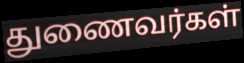
துணைவர்கள்